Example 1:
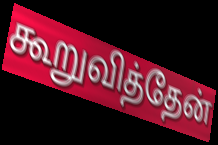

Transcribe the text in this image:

கூறுவித்தேன்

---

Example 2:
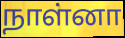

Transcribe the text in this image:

நாள்னா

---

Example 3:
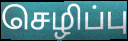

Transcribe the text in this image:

செழிப்பு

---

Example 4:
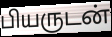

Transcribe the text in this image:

பியருடன்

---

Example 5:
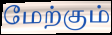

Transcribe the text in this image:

மேற்கும்